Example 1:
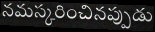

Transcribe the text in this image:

నమస్కరించినప్పుడు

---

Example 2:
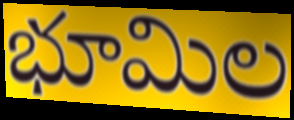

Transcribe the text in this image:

భూమిల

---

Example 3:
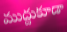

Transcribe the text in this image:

ముద్దుకూడా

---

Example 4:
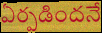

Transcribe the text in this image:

ఏర్పడిందనే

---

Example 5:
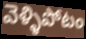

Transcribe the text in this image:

వెళ్ళిపోటం